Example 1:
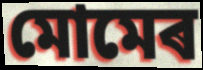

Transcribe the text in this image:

মোমেৰ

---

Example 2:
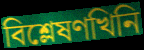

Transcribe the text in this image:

বিশ্লেষণখিনি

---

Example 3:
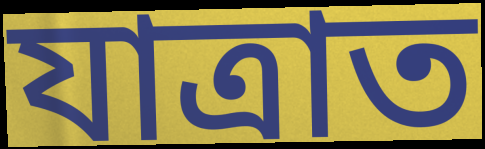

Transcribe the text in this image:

যাত্ৰাত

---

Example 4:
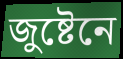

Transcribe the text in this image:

জুষ্টেনে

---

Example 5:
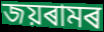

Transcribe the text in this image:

জয়ৰামৰ